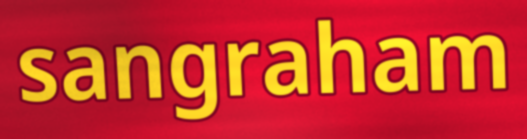
sangraham